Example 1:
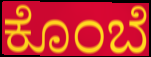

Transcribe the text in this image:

ಕೊಂಬೆ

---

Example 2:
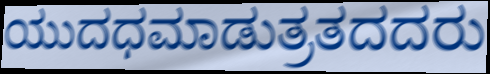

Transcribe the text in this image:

ಯುದಧಮಾಡುತ್ರತದದರು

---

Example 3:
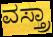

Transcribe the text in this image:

ವಸ್ತ್ರಾ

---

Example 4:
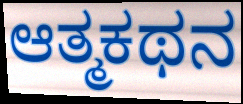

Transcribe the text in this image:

ಆತ್ಮಕಥನ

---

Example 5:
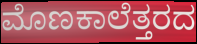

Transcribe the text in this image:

ಮೊಣಕಾಲೆತ್ತರದ